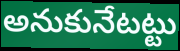
అనుకునేటట్టు